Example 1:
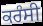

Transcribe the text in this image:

ਕਰੰਸੀ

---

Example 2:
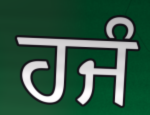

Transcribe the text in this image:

ਹਜੰ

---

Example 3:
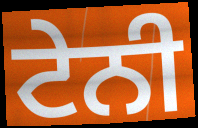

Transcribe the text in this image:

ਟੇਨੀ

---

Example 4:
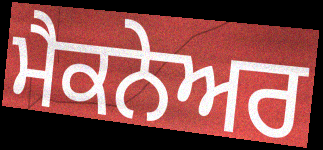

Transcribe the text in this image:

ਮੈਕਨੇਅਰ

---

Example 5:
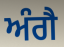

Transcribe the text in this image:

ਅੰਗੈ